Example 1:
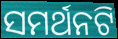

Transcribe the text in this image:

ସମର୍ଥନଟି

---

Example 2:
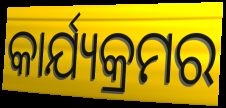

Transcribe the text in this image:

କାର୍ଯ୍ୟକ୍ରମର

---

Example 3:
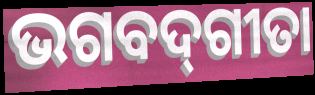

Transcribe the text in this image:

ଭଗବଦ୍‍ଗୀତା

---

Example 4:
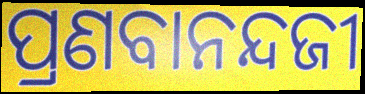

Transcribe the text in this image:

ପ୍ରଣବାନନ୍ଦଜୀ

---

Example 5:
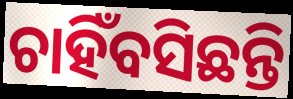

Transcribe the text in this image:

ଚାହିଁବସିଛନ୍ତି